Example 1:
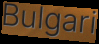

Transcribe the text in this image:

Bulgari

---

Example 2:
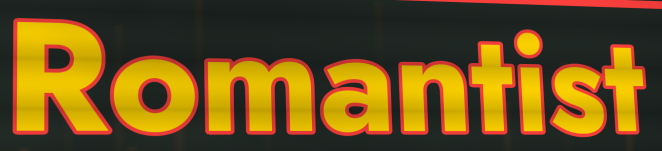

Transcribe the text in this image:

Romantist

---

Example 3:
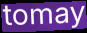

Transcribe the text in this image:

tomay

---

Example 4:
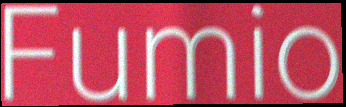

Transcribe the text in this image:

Fumio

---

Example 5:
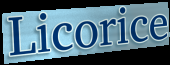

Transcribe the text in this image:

Licorice